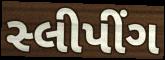
સ્લીપીંગ